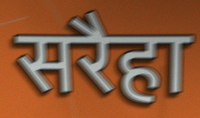
सरैहा